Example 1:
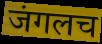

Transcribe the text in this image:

जंगलच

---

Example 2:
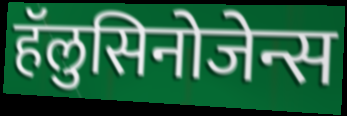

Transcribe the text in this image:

हॅलुसिनोजेन्स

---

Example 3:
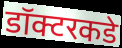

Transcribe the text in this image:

डॉक्टरकडे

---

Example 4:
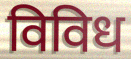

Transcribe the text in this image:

विविध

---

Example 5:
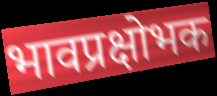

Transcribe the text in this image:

भावप्रक्षोभक